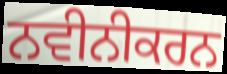
ਨਵੀਨੀਕਰਨ